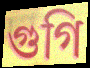
গুগি